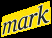
mark